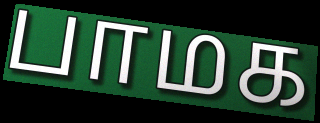
பாமக